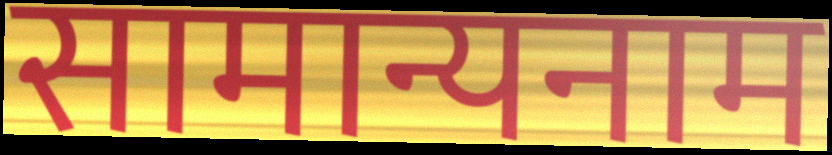
सामान्यनाम